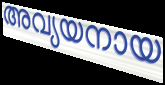
അവ്യയനായ